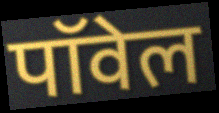
पॉवेल